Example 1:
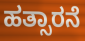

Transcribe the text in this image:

ಹತ್ಸಾರನೆ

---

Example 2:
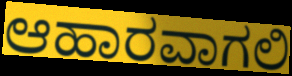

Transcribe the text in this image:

ಆಹಾರವಾಗಲಿ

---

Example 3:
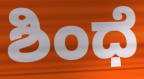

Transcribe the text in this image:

ಶಿಂಧೆ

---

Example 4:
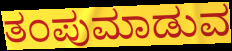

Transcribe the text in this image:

ತಂಪುಮಾಡುವ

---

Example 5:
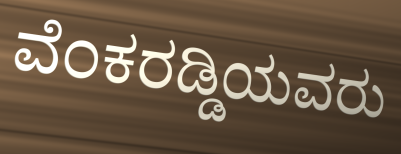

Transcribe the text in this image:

ವೆಂಕರಡ್ಡಿಯವರು